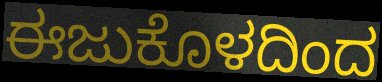
ಈಜುಕೊಳದಿಂದ